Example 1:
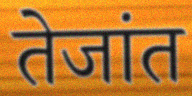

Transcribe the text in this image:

तेजांत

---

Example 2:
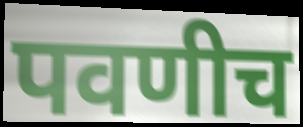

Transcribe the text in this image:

पवणीच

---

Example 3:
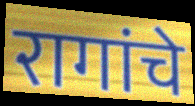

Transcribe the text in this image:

रागांचे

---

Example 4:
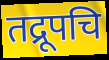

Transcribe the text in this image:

तद्रूपचि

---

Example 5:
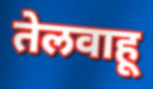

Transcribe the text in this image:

तेलवाहू